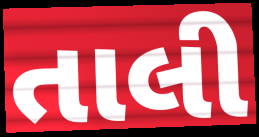
તાલી